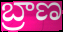
బ్రాణ